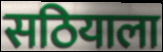
सठियाला